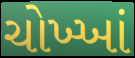
ચોખ્ખાં